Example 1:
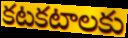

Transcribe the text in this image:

కటకటాలకు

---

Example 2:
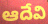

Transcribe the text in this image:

ఆదేవి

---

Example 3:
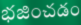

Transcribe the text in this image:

భజించడం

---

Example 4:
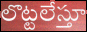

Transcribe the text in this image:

లొట్టలేస్తూ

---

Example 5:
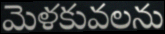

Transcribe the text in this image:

మెళకువలను